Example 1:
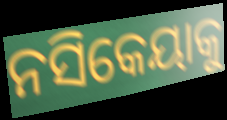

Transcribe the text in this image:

ନସିକେୟାକୁ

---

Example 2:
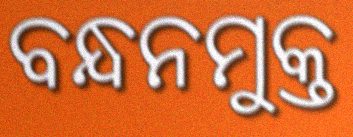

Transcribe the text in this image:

ବନ୍ଧନମୁକ୍ତ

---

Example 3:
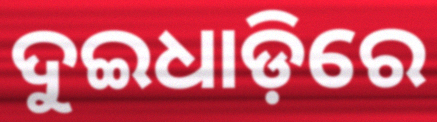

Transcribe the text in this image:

ଦୁଇଧାଡ଼ିରେ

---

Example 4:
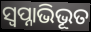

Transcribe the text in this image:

ସ୍ଵପ୍ନାଭିଭୂତ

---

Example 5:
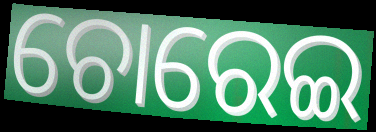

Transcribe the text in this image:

ଚୋରେଇ